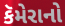
કૅમેરાનો